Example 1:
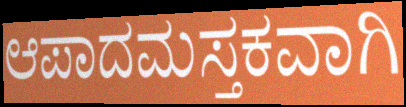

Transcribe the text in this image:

ಆಪಾದಮಸ್ತಕವಾಗಿ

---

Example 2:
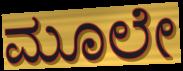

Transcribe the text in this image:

ಮೂಲೇ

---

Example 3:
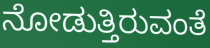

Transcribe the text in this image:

ನೋಡುತ್ತಿರುವಂತೆ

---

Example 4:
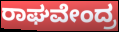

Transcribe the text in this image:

ರಾಘವೇಂದ್ರ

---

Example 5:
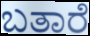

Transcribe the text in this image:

ಬತಾರೆ